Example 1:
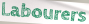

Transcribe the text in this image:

Labourers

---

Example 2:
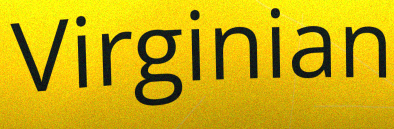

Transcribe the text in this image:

Virginian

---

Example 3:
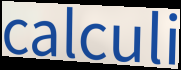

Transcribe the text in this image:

calculi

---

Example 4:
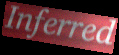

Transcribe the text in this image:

Inferred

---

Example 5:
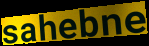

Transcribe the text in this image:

sahebne